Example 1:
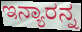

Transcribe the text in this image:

ಇನ್ಯಾರನ್ನ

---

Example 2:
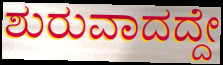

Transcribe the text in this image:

ಶುರುವಾದದ್ದೇ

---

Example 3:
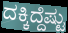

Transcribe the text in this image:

ದಕ್ಕಿದ್ದೆಷ್ಟು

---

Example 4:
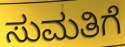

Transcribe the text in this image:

ಸುಮತಿಗೆ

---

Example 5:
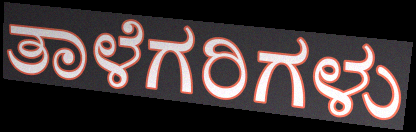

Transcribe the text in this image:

ತಾಳೆಗರಿಗಳು